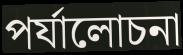
পর্যালোচনা